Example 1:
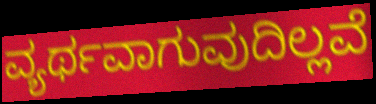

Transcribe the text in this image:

ವ್ಯರ್ಥವಾಗುವುದಿಲ್ಲವೆ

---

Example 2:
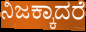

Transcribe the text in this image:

ನಿಜಕ್ಕಾದರೆ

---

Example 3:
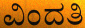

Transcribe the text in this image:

ವಿಂದತಿ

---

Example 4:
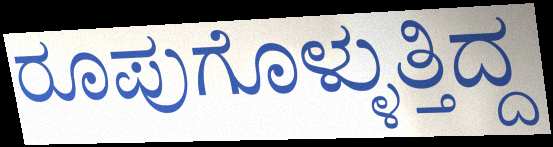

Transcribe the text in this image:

ರೂಪುಗೊಳ್ಳುತ್ತಿದ್ದ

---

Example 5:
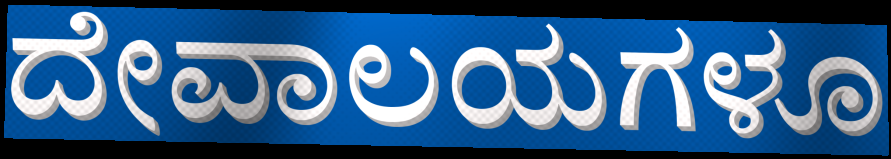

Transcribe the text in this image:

ದೇವಾಲಯಗಳೂ